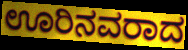
ಊರಿನವರಾದ